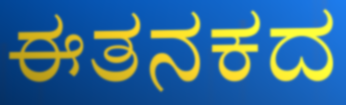
ಈತನಕದ